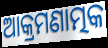
ଆକ୍ରମଣାତ୍ମକ